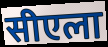
सीएला